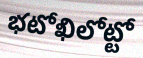
భటోఖిలోట్టో